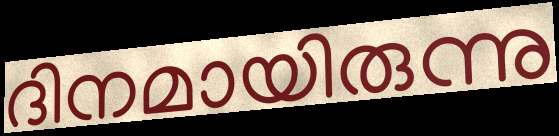
ദിനമായിരുന്നു